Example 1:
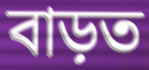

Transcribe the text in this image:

বাড়ত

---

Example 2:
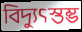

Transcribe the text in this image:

বিদ্যুৎস্তম্ভ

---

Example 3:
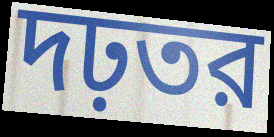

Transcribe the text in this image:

দঢ়তর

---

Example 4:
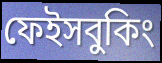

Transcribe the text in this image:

ফেইসবুকিং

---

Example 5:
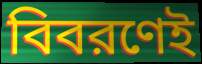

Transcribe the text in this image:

বিবরণেই